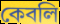
কেবলি